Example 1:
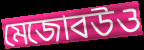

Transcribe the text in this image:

মেজোবউও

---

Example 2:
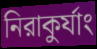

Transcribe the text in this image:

নিরাকুর্যাং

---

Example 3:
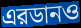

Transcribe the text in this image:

এরডানও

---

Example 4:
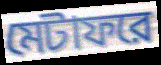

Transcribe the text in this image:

মেটাফরে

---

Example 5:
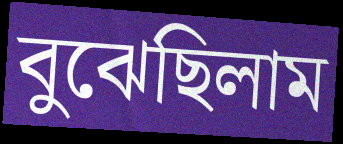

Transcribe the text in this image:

বুঝেছিলাম